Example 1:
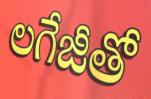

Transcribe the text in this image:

లగేజీతో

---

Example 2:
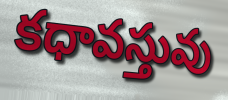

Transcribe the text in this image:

కధావస్తువు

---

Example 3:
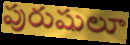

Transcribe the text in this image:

పురుషులూ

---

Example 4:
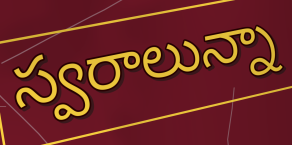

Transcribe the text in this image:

స్వరాలున్నా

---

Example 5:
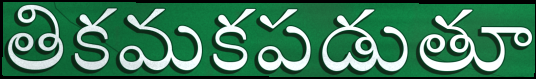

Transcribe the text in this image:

తికమకపడుతూ